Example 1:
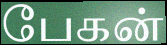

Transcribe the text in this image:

பேகன்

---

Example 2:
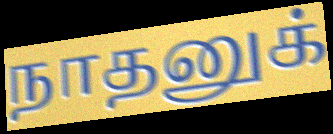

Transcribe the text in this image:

நாதனுக்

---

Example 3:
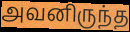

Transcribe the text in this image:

அவனிருந்த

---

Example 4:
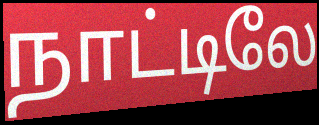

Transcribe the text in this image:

நாட்டிலே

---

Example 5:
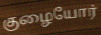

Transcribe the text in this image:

குழையோர்